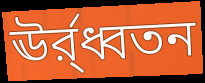
ঊর্র্ধ্বতন